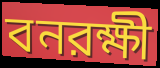
বনরক্ষী